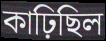
কাঢ়িছিল